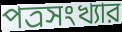
পত্রসংখ্যার